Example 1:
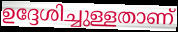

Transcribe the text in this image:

ഉദ്ദേശിച്ചുള്ളതാണ്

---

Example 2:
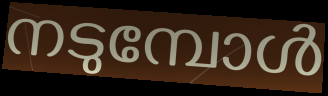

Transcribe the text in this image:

നടുമ്പോൾ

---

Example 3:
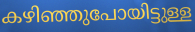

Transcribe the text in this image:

കഴിഞ്ഞുപോയിട്ടുള്ള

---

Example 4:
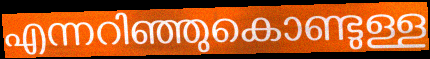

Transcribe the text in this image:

എന്നറിഞ്ഞുകൊണ്ടുള്ള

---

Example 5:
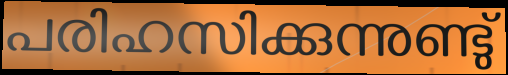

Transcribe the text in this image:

പരിഹസിക്കുന്നുണ്ടു്